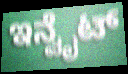
ಇನ್ವೈಟ್